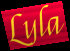
Lyla